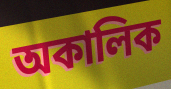
অকালিক